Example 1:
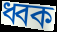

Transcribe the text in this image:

ধ্বক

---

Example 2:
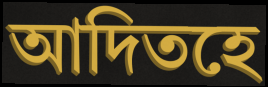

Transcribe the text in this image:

আদিতহে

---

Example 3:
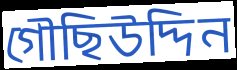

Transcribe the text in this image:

গৌছিউদ্দিন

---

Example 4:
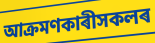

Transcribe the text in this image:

আক্ৰমণকাৰীসকলৰ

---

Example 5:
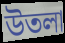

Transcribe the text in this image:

উতলা